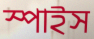
স্পাইস